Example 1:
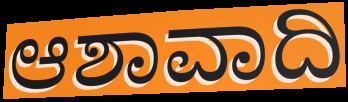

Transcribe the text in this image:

ಆಶಾವಾದಿ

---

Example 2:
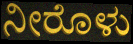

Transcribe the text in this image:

ನೀರೊಳು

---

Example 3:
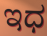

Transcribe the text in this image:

ಇಧ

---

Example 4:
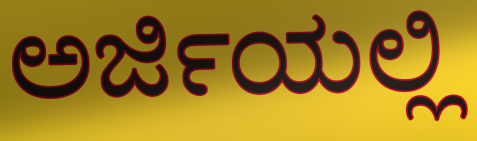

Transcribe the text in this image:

ಅರ್ಜಿಯಲ್ಲಿ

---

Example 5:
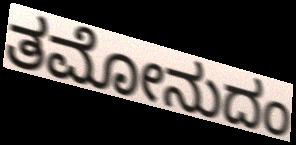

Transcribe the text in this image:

ತಮೋನುದಂ